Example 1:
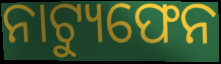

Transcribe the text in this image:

ନାଟ୍ୟୁଫେନ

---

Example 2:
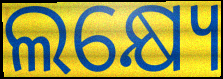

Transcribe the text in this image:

ଲକ୍ଷ୍ୟେ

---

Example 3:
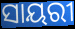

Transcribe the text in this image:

ସାୟରୀ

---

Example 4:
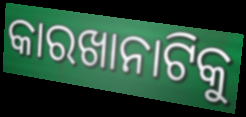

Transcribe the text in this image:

କାରଖାନାଟିକୁ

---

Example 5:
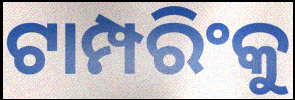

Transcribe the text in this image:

ଟାମ୍ପରିଂକୁ